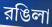
রঙিলা